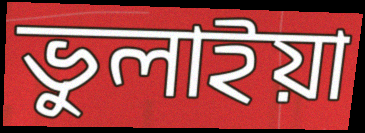
ভুলাইয়া